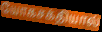
யோகசக்தியால்